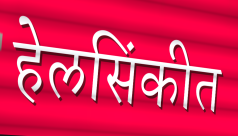
हेलसिंकीत